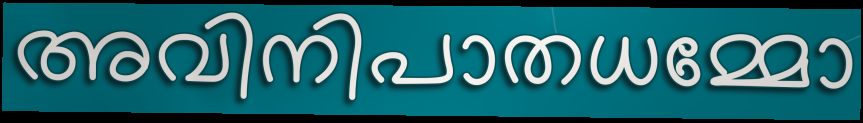
അവിനിപാതധമ്മോ